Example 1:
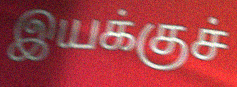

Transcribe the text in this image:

இயக்குச்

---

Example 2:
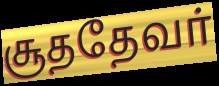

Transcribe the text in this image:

சூததேவர்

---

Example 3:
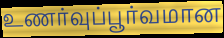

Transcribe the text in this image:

உணர்வுப்பூர்வமான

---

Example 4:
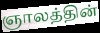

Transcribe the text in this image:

ஞாலத்தின்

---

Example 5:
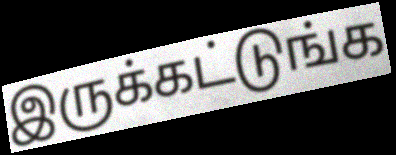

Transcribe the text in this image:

இருக்கட்டுங்க